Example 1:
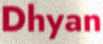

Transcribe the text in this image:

Dhyan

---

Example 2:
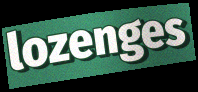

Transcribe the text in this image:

lozenges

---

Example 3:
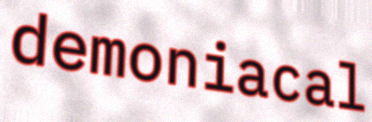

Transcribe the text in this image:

demoniacal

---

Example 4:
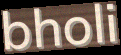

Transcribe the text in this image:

bholi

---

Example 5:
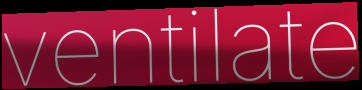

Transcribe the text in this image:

ventilate